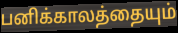
பனிக்காலத்தையும்